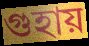
গুহায়